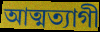
আত্মত্যাগী